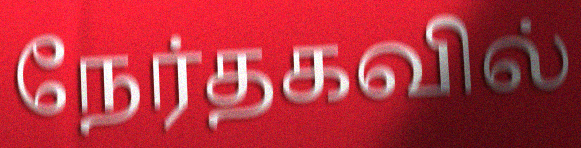
நேர்தகவில்